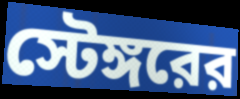
স্টেঙ্গরের